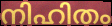
നിഹിതം